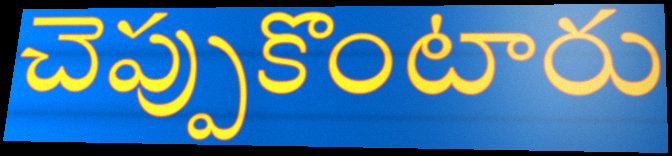
చెప్పుకొంటారు